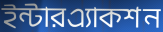
ইন্টারএ্যাকশন